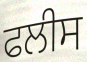
ਫਲੀਸ